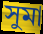
সুমা